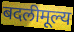
बदलीमूल्य